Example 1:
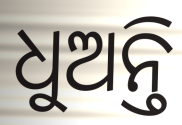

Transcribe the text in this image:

ଧୁଅନ୍ତି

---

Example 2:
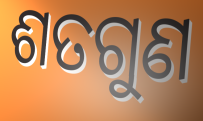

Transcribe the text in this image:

ଶତଗୁଣ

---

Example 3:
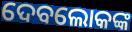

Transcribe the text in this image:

ଦେବଲୋକଙ୍କ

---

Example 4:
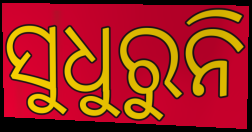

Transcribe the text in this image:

ସୁଧୁରୁନି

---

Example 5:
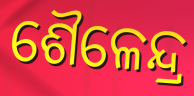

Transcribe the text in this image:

ଶୈଳେନ୍ଦ୍ର